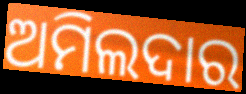
ଅମିଲଦାର